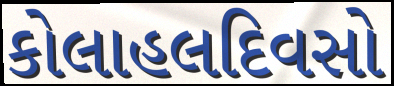
કોલાહલદિવસો